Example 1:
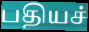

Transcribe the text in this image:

பதியச்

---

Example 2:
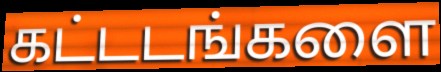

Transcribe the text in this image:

கட்டடங்களை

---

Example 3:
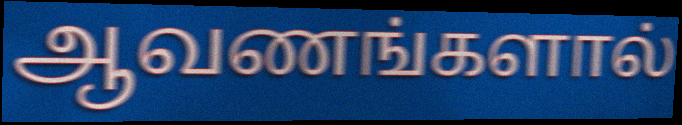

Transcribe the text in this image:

ஆவணங்களால்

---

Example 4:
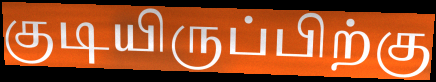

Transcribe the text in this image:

குடியிருப்பிற்கு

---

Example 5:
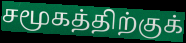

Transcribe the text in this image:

சமூகத்திற்குக்